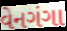
વેનગંગા